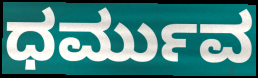
ಧರ್ಮುವ